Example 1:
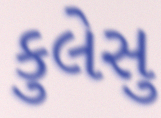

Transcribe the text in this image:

કુલેસુ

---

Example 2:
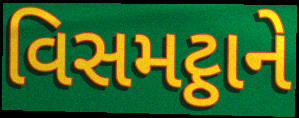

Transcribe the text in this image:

વિસમટ્ઠાને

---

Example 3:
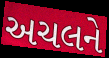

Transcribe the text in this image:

અચલને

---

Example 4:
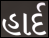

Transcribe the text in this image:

હાર્દ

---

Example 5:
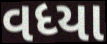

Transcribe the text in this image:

વધ્યા